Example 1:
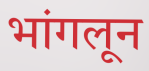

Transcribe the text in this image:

भांगलून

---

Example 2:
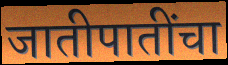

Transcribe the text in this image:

जातीपातींचा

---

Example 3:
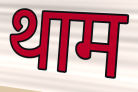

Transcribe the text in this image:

थाम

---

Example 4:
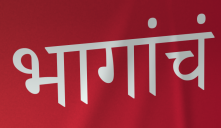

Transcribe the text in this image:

भागांचं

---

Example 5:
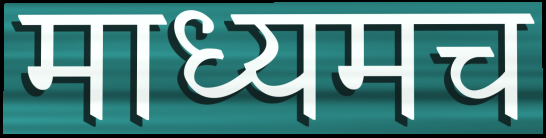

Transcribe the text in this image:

माध्यमच